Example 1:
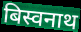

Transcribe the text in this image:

बिस्वनाथ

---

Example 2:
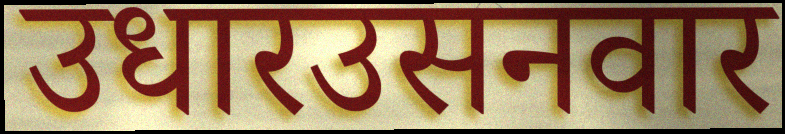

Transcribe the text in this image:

उधारउसनवार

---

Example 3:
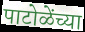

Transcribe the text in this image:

पाटोळेंच्या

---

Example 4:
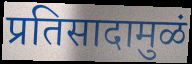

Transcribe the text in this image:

प्रतिसादामुळं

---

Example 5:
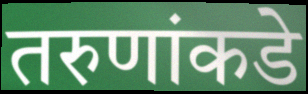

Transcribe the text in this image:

तरुणांकडे